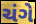
ચંગે